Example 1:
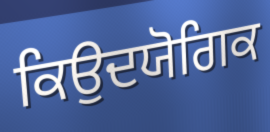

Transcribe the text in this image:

ਕਿਉਦਯੋਗਿਕ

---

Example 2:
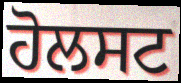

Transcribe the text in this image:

ਹੋਲਸਟ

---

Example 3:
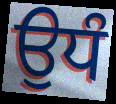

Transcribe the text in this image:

ਉਧੰ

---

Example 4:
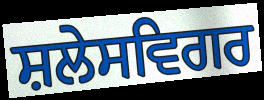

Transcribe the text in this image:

ਸ਼ਲੇਸਵਿਗਰ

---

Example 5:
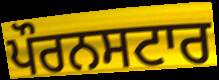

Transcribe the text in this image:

ਪੌਰਨਸਟਾਰ